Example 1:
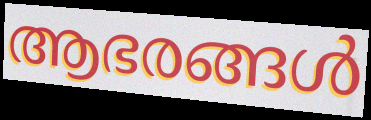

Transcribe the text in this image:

ആഭരങ്ങൾ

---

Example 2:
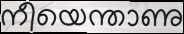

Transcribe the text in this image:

നീയെന്താണു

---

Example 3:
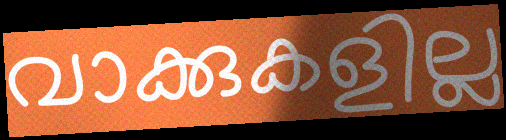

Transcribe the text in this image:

വാക്കുകളില്ല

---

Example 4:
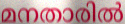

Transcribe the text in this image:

മനതാരിൽ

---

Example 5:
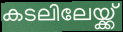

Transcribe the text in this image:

കടലിലേയ്ക്ക്